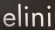
elini